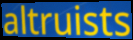
altruists